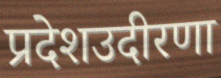
प्रदेशउदीरणा